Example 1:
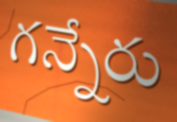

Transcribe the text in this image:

గన్నేరు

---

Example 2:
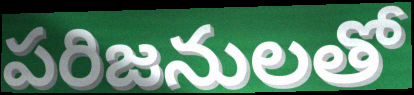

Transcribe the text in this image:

పరిజనులతో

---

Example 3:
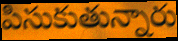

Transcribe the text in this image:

పిసుకుతున్నారు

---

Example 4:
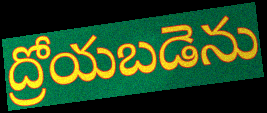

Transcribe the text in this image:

ద్రోయబడెను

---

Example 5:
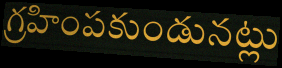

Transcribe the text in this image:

గ్రహింపకుండునట్లు